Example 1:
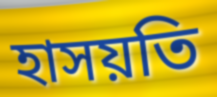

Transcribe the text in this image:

হাসয়তি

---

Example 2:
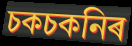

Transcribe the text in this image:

চকচকনিৰ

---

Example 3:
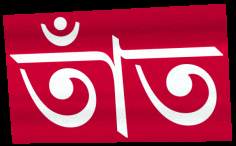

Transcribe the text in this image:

তাঁত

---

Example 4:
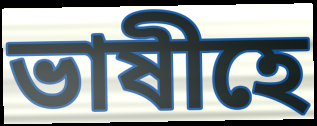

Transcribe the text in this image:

ভাষীহে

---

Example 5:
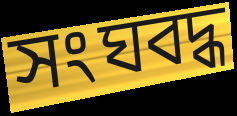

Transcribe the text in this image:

সংঘবদ্ধ